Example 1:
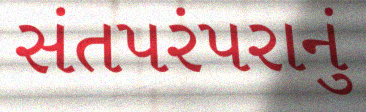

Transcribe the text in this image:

સંતપરંપરાનું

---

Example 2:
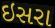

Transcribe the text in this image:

ઇસરા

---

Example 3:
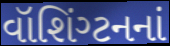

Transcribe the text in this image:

વૉશિંગ્ટનનાં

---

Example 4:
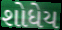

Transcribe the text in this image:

શોધેય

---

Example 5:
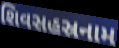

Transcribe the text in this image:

શિવસહસ્રનામ